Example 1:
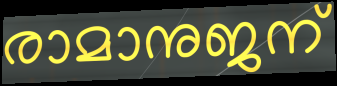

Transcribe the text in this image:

രാമാനുജന്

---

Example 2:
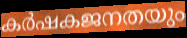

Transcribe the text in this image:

കർഷകജനതയും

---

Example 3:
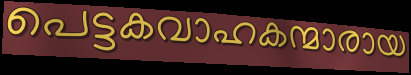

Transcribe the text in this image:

പെട്ടകവാഹകന്മാരായ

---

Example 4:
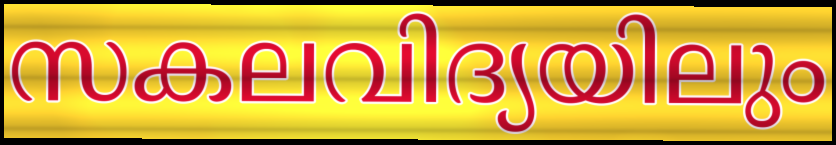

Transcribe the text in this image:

സകലവിദ്യയിലും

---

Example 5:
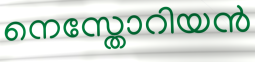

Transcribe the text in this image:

നെസ്തോറിയൻ